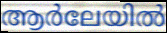
ആർലേയിൽ